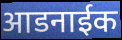
आडनाईक